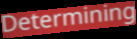
Determining